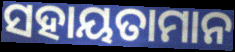
ସହାୟତାମାନ